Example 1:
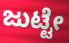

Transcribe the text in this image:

ಜುಟ್ಟೇ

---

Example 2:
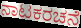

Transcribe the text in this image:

ನಾಟಕರಚನೆ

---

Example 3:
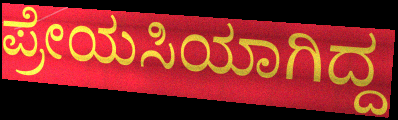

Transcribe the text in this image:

ಪ್ರೇಯಸಿಯಾಗಿದ್ದ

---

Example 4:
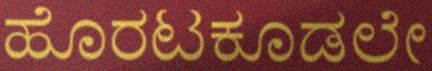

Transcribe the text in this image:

ಹೊರಟಕೂಡಲೇ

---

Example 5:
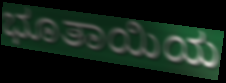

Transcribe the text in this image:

ಭೂತಾಯಿಯ